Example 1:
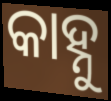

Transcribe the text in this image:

କାହ୍ନୁ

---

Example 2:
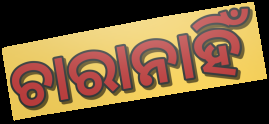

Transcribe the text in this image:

ଚାରାନାହିଁ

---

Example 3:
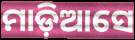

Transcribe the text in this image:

ମାଡ଼ିଆସେ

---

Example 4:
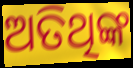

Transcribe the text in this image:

ଅତିଥିଙ୍କ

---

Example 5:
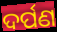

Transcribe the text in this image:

ଦର୍ପଣ